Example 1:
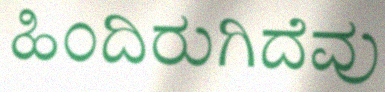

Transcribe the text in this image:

ಹಿಂದಿರುಗಿದೆವು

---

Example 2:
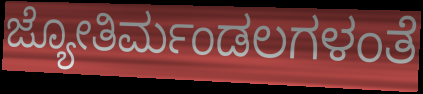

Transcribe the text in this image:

ಜ್ಯೋತಿರ್ಮಂಡಲಗಳಂತೆ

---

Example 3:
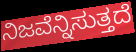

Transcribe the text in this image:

ನಿಜವೆನ್ನಿಸುತ್ತದೆ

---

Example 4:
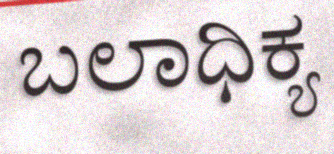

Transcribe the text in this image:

ಬಲಾಧಿಕ್ಯ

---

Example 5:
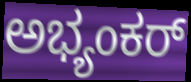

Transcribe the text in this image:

ಅಭ್ಯಂಕರ್